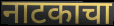
नाटकाचा